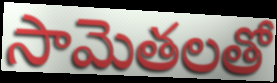
సామెతలతో